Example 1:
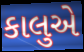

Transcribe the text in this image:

કાલુએ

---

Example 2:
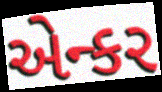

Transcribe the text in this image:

એન્કર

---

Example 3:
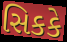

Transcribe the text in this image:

સિકકે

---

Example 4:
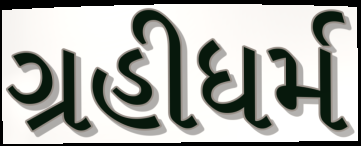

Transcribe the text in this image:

ગ્રહીધર્મ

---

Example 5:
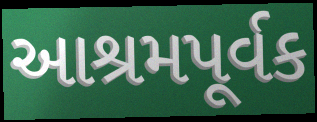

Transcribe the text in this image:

આશ્રમપૂર્વક